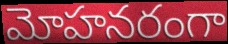
మోహనరంగా